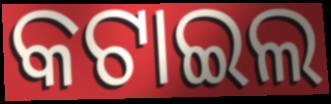
କଟାଇଲ